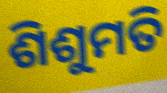
ଶିଶୁମତି